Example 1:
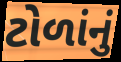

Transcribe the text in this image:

ટોળાંનું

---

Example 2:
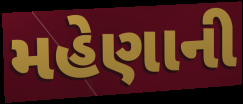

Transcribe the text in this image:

મહેણાની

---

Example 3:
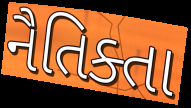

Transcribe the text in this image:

નૈતિક્તા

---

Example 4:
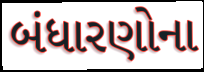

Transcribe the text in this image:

બંધારણોના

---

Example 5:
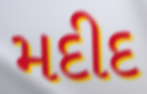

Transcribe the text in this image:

મદીદ